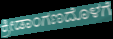
ಕ್ರೀಡಾಂಗಣದೊಳಗೆ